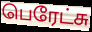
பெரேட்சு